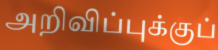
அறிவிப்புக்குப்